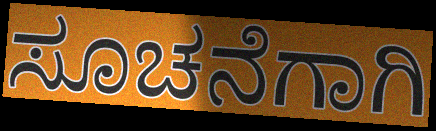
ಸೂಚನೆಗಾಗಿ